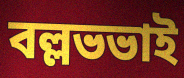
বল্লভভাই